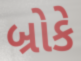
બ્રોકે